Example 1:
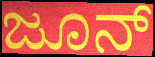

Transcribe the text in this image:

ಜೂನ್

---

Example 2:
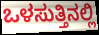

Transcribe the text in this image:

ಒಳಸುತ್ತಿನಲ್ಲಿ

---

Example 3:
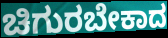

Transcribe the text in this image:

ಚಿಗುರಬೇಕಾದ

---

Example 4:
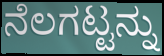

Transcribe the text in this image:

ನೆಲಗಟ್ಟನ್ನು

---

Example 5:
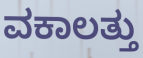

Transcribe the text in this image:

ವಕಾಲತ್ತು